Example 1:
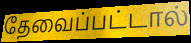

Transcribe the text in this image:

தேவைப்பட்டால்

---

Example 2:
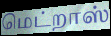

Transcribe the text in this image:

மெட்றாஸ்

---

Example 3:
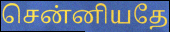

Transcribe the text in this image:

சென்னியதே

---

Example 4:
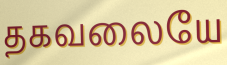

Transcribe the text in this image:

தகவலையே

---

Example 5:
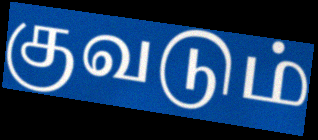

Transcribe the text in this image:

குவடும்